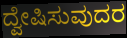
ದ್ವೇಷಿಸುವುದರ